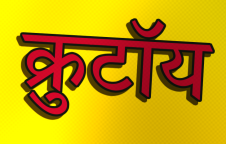
क्रुटॉय